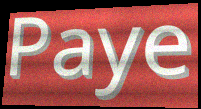
Paye